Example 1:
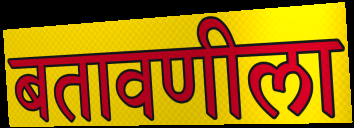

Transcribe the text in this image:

बतावणीला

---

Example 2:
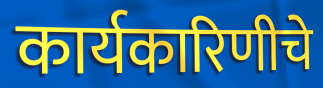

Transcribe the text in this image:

कार्यकारिणीचे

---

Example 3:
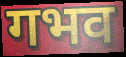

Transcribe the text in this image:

गभव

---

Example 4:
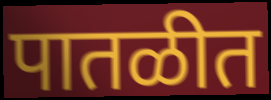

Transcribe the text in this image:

पातळीत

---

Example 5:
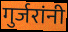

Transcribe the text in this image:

गुर्जरांनी